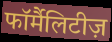
फॉर्मैलिटीज़